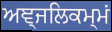
ਅਞ੍ਜਲਿਕਮ੍ਮਂ